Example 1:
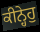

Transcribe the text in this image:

ਕੀਨ੍ਹੇਹੁ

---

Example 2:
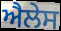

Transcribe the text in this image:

ਐਲੇਸ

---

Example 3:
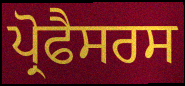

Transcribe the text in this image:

ਪ੍ਰੋਫੈਸਰਸ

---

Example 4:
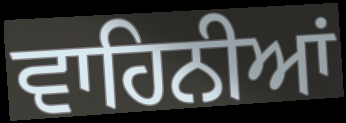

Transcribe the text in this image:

ਵਾਹਿਨੀਆਂ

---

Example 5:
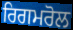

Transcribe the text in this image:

ਰਿਗਮਰੋਲ